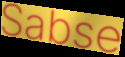
Sabse